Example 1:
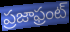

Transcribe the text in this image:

ప్రజాఫ్రంట్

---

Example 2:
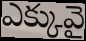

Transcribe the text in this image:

ఎక్కువై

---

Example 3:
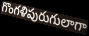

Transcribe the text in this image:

గొంగళిపురుగులాగా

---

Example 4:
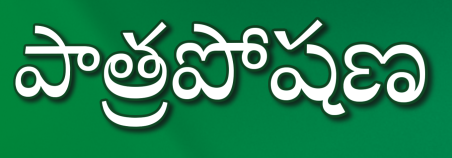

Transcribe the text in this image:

పాత్రపోషణ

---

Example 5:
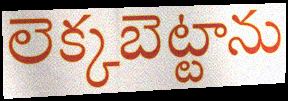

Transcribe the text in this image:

లెక్కబెట్టాను